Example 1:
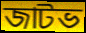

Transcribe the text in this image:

জাটভ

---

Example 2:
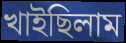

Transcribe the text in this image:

খাইছিলাম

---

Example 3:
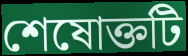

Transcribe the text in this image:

শেষোক্তটি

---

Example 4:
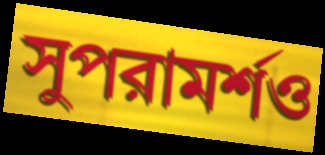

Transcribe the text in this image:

সুপরামর্শও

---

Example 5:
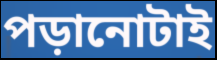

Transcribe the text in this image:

পড়ানোটাই